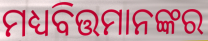
ମଧ୍ୟବିତ୍ତମାନଙ୍କର